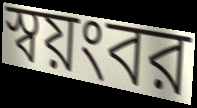
স্বয়ংবর